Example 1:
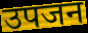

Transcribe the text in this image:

उपजन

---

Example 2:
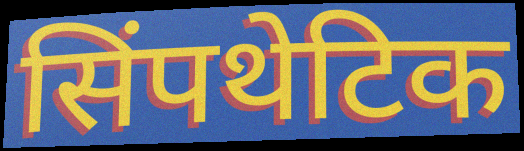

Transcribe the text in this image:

सिंपथेटिक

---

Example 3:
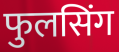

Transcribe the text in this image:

फुलसिंग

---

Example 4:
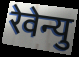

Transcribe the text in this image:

रेवेन्यु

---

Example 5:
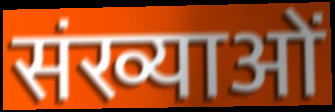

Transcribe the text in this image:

संख्याओं